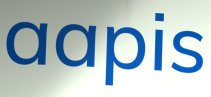
aapis